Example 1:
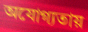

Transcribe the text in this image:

অযোগ্যতায়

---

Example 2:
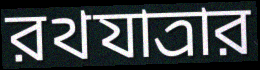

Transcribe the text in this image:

রথযাত্রার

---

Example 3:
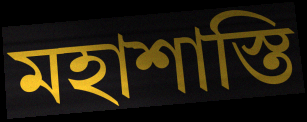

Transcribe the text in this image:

মহাশাস্তি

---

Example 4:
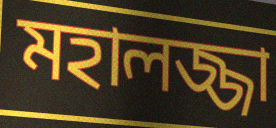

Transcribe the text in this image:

মহালজ্জা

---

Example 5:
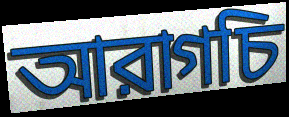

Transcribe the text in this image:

আরাগচি